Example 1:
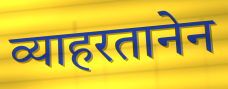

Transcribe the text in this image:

व्याहरतानेन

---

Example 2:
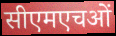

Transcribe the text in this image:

सीएमएचओं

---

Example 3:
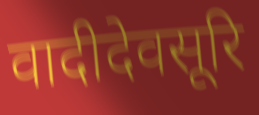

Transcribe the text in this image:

वादीदेवसूरि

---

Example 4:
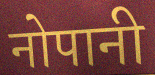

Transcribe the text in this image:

नोपानी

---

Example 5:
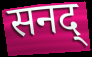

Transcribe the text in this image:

सनद्